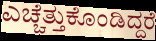
ಎಚ್ಚೆತ್ತುಕೊಂಡಿದ್ದರೆ